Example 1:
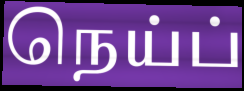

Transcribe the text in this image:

நெய்ப்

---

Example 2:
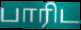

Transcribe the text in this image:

பாரிட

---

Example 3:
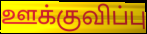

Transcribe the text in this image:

ஊக்குவிப்பு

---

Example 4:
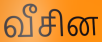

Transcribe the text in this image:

வீசின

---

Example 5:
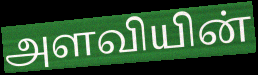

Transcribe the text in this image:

அளவியின்